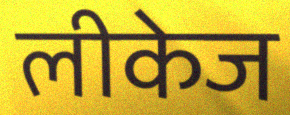
लीकेज